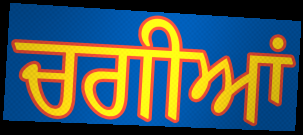
ਚਗੀਆਂ